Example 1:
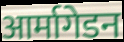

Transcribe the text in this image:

आर्मागेडन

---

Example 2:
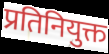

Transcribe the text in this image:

प्रतिनियुक्त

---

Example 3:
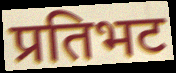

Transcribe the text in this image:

प्रतिभट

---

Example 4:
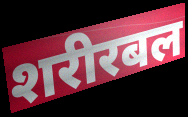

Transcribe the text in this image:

शरीरबल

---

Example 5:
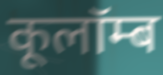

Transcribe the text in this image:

कूलॉम्ब